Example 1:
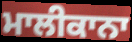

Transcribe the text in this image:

ਮਾਲੀਕਾਨਾ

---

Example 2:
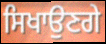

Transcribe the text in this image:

ਸਿਖਾਉਣਗੇ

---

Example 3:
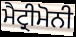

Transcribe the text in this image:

ਮੈਟ੍ਰੀਮੋਨੀ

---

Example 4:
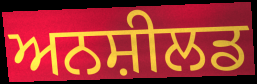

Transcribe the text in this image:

ਅਨਸ਼ੀਲਡ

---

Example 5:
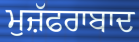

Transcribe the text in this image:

ਮੁਜ਼ੱਫਰਾਬਾਦ